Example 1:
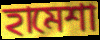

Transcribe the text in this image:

হামেশা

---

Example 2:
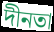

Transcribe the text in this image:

দীনতা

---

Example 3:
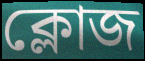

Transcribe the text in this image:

ক্লোজ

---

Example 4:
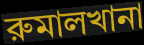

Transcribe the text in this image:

রুমালখানা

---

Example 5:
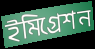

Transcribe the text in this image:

ইমিগ্রেশন